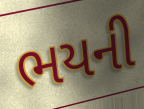
ભયની